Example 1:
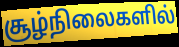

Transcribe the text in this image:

சூழ்நிலைகளில்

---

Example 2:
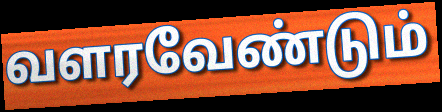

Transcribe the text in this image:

வளரவேண்டும்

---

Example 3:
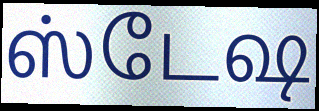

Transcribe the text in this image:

ஸ்டேஷ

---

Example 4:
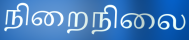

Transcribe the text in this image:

நிறைநிலை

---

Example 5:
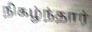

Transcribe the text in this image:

நிகழ்ந்தார்